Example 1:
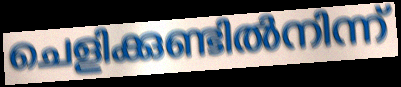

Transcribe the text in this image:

ചെളിക്കുണ്ടിൽനിന്ന്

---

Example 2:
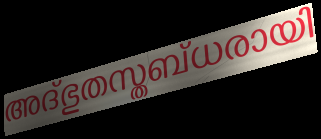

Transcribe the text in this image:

അദ്ഭുതസ്തബ്ധരായി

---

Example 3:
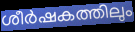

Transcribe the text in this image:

ശീർഷകത്തിലും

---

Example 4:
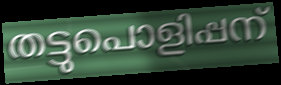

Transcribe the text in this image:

തട്ടുപൊളിപ്പന്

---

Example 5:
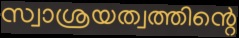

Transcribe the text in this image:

സ്വാശ്രയത്വത്തിന്റെ